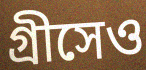
গ্রীসেও